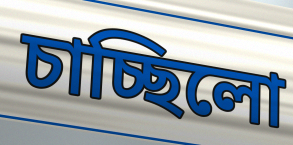
চাচ্ছিলো